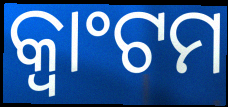
କ୍ୱାଂଟମ